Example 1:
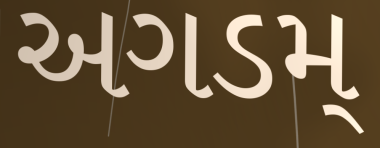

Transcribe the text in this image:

અગડમ્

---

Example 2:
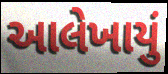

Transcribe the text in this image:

આલેખાયું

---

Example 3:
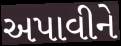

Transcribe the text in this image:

અપાવીને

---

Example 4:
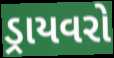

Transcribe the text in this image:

ડ્રાયવરો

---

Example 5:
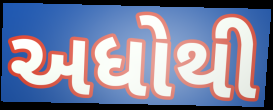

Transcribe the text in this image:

અધોથી